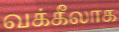
வக்கீலாக